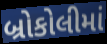
બ્રોકોલીમાં